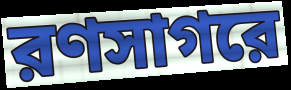
রণসাগরে